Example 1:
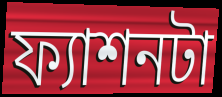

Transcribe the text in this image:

ফ্যাশনটা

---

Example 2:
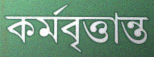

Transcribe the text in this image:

কর্মবৃত্তান্ত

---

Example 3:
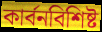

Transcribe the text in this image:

কার্বনবিশিষ্ট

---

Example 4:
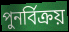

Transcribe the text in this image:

পুনর্বিক্রয়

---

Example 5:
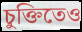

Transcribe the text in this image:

চুক্তিতেও